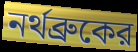
নর্থব্রুকের